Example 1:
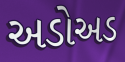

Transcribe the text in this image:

અડોઅડ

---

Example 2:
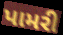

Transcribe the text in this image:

પામરી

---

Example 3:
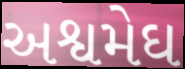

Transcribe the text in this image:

અશ્વમેઘ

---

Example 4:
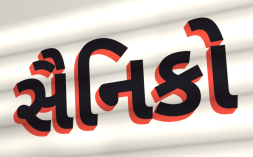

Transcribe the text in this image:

સૈનિકો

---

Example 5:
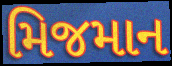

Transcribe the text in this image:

મિજમાન